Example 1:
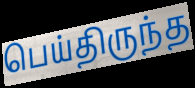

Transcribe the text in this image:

பெய்திருந்த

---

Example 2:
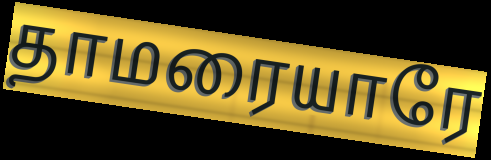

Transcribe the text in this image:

தாமரையாரே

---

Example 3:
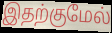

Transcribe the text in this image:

இதற்குமேல்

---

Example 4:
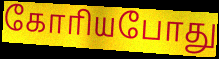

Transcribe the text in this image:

கோரியபோது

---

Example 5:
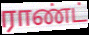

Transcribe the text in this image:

ராண்ட்